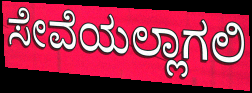
ಸೇವೆಯಲ್ಲಾಗಲಿ